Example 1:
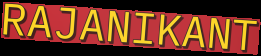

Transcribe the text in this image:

RAJANIKANT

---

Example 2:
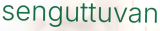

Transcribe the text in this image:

senguttuvan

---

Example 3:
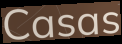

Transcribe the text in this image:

Casas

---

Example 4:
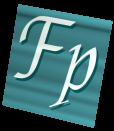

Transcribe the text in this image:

Fp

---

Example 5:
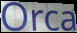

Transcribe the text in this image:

Orca